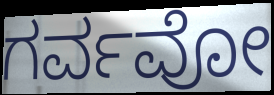
ಗರ್ವವೋ